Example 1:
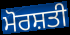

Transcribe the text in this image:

ਮੋਰਸ਼ਤੀ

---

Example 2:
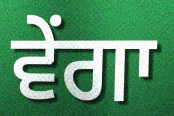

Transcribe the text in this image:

ਵੇਂਗਾ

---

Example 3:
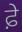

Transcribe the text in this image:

ਫ਼ੇ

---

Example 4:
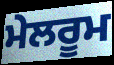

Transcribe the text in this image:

ਮੇਲਰੂਮ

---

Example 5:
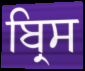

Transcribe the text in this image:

ਬ੍ਰਿਸ